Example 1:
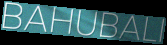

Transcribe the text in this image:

BAHUBALI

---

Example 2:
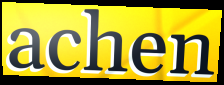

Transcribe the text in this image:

achen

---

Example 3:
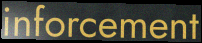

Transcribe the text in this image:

inforcement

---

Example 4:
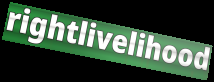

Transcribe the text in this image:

rightlivelihood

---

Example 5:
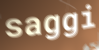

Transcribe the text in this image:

saggi